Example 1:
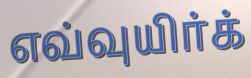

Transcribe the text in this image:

எவ்வுயிர்க்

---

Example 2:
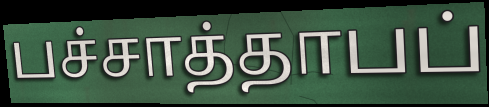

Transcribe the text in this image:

பச்சாத்தாபப்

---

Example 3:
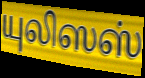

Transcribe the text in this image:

யுலிஸஸ்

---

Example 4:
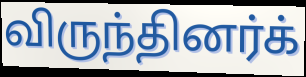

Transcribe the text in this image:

விருந்தினர்க்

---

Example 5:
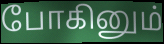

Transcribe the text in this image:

போகினும்